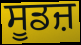
ਸੂਡਜ਼